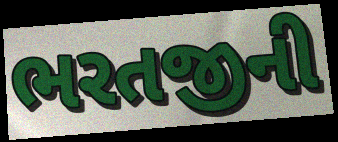
ભરતજીની